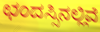
ಛಂದಸ್ಸಿನಲ್ಲಿವೆ